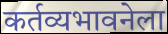
कर्तव्यभावनेला